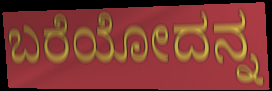
ಬರೆಯೋದನ್ನ